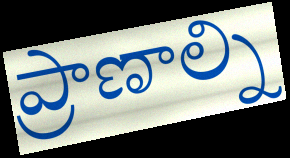
ప్రాణాల్ని